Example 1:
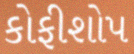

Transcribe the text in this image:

કોફીશોપ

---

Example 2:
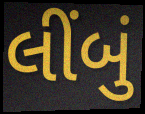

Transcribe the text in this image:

લીંબું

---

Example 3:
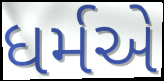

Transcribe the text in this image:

ધર્મએ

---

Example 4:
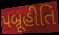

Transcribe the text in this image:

પબ્રૂહીતિ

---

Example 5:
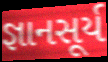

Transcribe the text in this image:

જ્ઞાનસૂર્ય